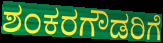
ಶಂಕರಗೌಡರಿಗೆ